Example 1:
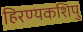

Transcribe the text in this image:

हिरण्यकशिपु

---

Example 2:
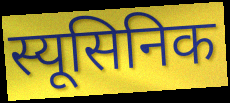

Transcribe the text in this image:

स्यूसिनिक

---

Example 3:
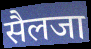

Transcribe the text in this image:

सैलजा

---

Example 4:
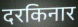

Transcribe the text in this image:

दरकिनार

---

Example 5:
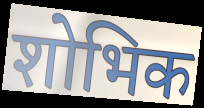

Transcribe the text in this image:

शोभिक